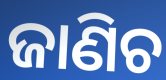
ଜାଣିଚ